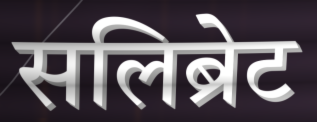
सलिब्रेट